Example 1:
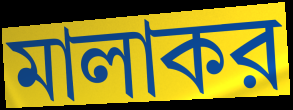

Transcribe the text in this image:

মালাকর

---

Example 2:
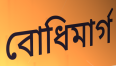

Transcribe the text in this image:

বোধিমার্গ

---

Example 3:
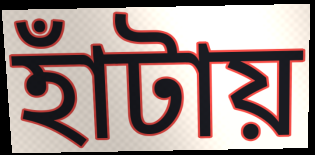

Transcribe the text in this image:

হাঁটায়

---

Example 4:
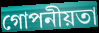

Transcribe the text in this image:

গোপনীয়তা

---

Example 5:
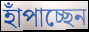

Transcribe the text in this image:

হাঁপাচ্ছেন